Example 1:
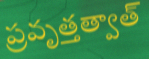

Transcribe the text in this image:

ప్రవృత్తత్వాత్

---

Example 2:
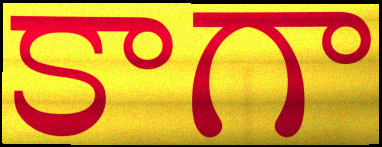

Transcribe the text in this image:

కాగా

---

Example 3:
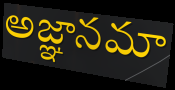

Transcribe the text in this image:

అజ్ఞానమా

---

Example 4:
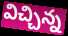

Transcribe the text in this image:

విచ్చిన్న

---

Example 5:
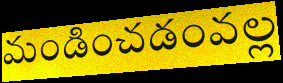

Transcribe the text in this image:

మండించడంవల్ల